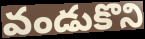
వండుకొని